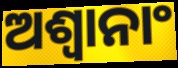
ଅଶ୍ଵାନାଂ